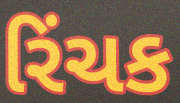
રિંચક